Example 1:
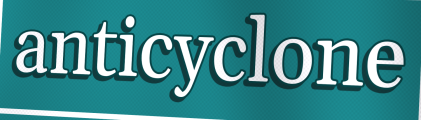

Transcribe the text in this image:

anticyclone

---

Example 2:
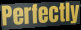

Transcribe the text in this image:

Perfectly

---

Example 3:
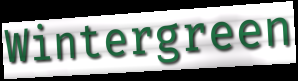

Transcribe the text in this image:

Wintergreen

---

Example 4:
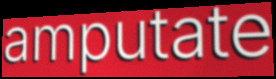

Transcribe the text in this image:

amputate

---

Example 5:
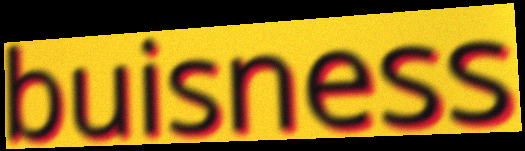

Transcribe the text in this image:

buisness